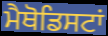
ਮੈਥੋਡਿਸਟਾਂ